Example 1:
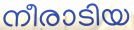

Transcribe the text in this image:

നീരാടിയ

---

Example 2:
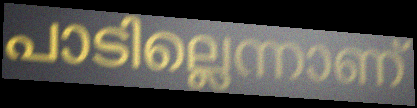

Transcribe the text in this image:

പാടില്ലെന്നാണ്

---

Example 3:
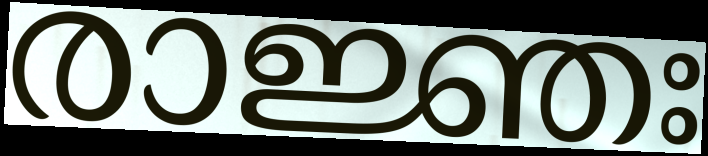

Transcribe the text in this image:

രാജ്ഞഃ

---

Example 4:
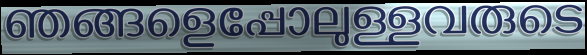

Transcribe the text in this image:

ഞങ്ങളെപ്പോലുള്ളവരുടെ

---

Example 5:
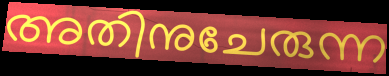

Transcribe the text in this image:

അതിനുചേരുന്ന